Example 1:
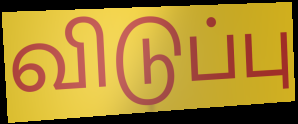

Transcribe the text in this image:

விடுப்பு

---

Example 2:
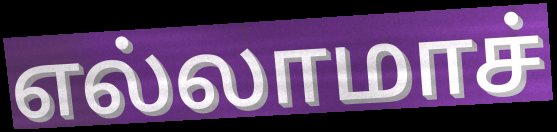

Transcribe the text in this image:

எல்லாமாச்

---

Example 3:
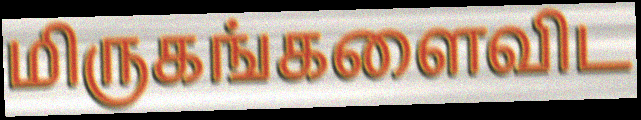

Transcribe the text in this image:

மிருகங்களைவிட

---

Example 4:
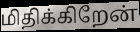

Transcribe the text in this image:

மிதிக்கிறேன்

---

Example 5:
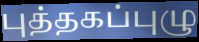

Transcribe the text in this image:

புத்தகப்புழு